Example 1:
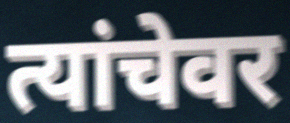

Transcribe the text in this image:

त्यांचेवर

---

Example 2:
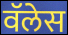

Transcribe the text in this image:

वॅलेस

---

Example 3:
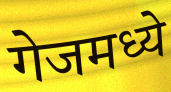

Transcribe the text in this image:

गेजमध्ये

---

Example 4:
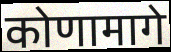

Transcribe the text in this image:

कोणामागे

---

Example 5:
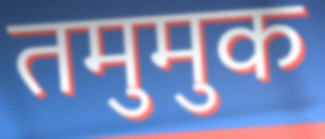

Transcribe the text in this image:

तमुमुक